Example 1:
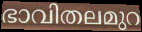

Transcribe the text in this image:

ഭാവിതലമുറ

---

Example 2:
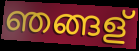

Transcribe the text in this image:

ഞങ്ങള്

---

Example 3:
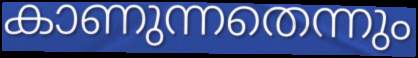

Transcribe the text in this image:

കാണുന്നതെന്നും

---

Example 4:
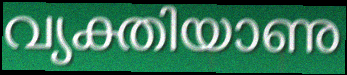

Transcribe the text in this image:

വ്യക്തിയാണു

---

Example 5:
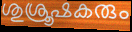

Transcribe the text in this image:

ശുശ്രൂഷകരും